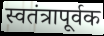
स्वतंत्रापूर्वक